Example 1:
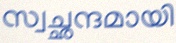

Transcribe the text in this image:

സ്വച്ഛന്ദമായി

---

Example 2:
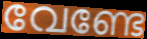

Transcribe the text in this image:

വേണ്ടേ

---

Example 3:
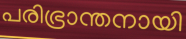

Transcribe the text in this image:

പരിഭ്രാന്തനായി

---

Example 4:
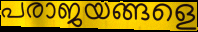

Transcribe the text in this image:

പരാജയങ്ങളെ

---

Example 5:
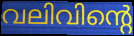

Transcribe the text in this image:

വലിവിന്റെ